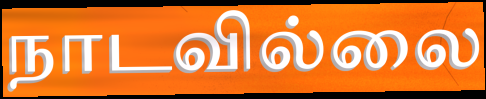
நாடவில்லை